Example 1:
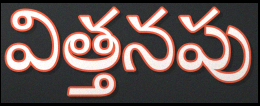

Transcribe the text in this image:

విత్తనపు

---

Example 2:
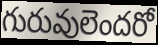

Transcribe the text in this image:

గురువులెందరో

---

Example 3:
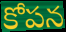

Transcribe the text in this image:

కోపన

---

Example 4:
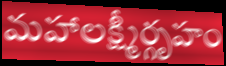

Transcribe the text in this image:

మహాలక్ష్మీర్గృహం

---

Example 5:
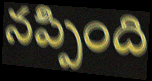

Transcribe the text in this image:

నప్పింది